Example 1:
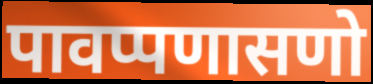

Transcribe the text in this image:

पावप्पणासणो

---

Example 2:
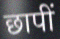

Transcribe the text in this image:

छापीं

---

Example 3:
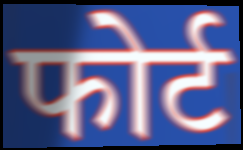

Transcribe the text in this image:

फोर्ट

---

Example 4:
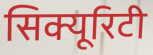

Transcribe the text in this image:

सिक्यूरिटी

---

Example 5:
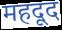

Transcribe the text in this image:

महदूद